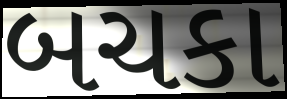
બચકા